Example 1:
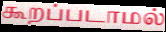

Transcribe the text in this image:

கூறப்படாமல்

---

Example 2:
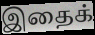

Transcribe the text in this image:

இதைக்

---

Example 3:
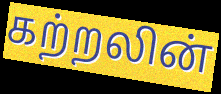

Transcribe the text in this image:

கற்றலின்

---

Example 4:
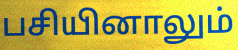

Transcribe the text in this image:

பசியினாலும்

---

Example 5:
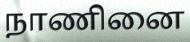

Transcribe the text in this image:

நாணினை